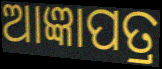
ଆଜ୍ଞାପତ୍ର